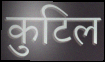
कुटिल